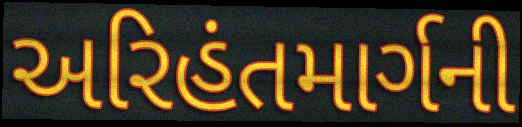
અરિહંતમાર્ગની